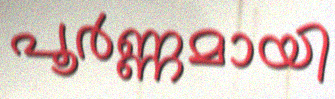
പൂർണ്ണമായി